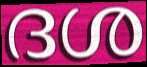
ദശ